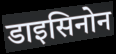
डाइसिनोन